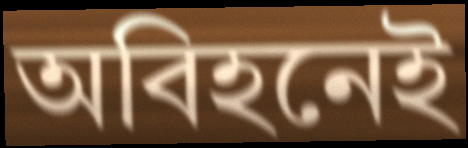
অবিহনেই